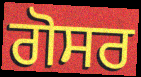
ਗੋਸਰ